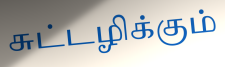
சுட்டழிக்கும்